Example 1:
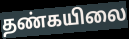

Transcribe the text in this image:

தண்கயிலை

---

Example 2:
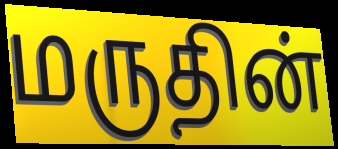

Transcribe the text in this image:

மருதின்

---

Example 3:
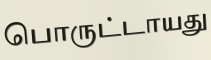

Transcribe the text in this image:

பொருட்டாயது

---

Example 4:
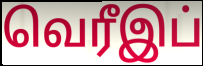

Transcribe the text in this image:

வெரீஇப்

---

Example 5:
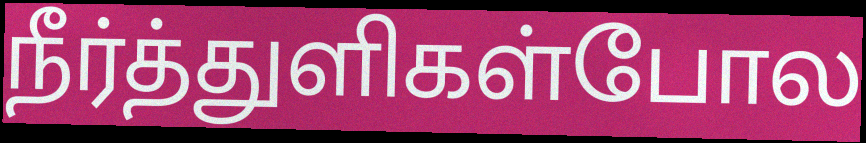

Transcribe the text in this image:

நீர்த்துளிகள்போல